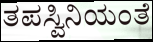
ತಪಸ್ವಿನಿಯಂತೆ